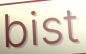
bist